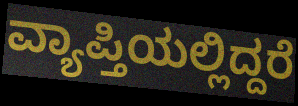
ವ್ಯಾಪ್ತಿಯಲ್ಲಿದ್ದರೆ